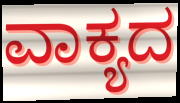
ವಾಕ್ಯದ